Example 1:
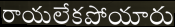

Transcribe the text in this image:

రాయలేకపోయారు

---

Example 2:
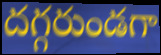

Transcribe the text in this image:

దగ్గరుండగా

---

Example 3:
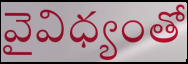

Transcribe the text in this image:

వైవిధ్యంతో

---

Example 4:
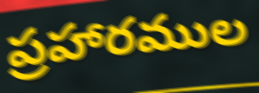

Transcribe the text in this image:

ప్రహారముల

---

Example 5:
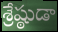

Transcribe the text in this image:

శ్రేష్ఠుడా